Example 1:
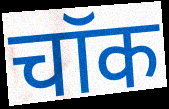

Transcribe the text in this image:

चॉक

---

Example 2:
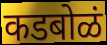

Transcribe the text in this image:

कडबोळं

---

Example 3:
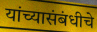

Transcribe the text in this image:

यांच्यासंबंधीचे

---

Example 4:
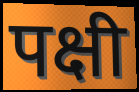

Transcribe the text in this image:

पक्षी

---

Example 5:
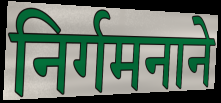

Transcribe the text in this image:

निर्गमनाने